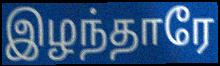
இழந்தாரே